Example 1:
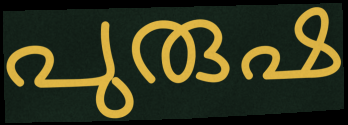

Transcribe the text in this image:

പുരുഷ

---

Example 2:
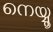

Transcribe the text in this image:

നെയ്യൂ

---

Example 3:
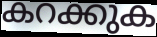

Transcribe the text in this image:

കറക്കുക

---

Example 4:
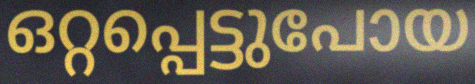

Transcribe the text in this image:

ഒറ്റപ്പെട്ടുപോയ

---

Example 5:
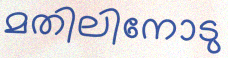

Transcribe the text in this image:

മതിലിനോടു